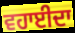
ਵਹਾਈਦਾ